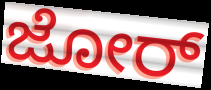
ಜೋರ್